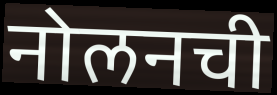
नोलनची